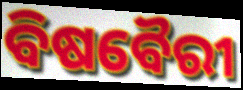
ବିଷବୈରୀ